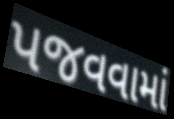
પજવવામાં